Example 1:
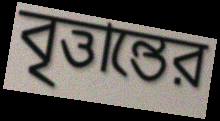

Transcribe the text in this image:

বৃত্তান্তের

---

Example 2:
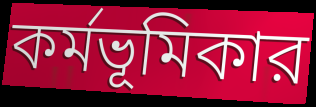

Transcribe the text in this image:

কর্মভূমিকার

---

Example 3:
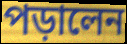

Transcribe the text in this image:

পড়ালেন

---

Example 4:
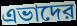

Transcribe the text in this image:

এভাদের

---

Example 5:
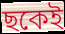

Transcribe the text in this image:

ছকেই